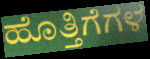
ಹೊತ್ತಿಗೆಗಳ